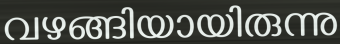
വഴങ്ങിയായിരുന്നു